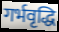
गर्भवृद्धि